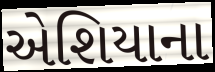
એશિયાના